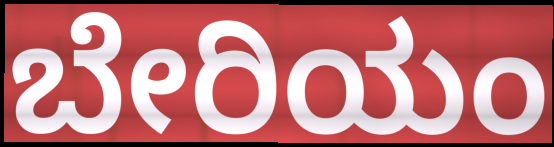
ಬೇರಿಯಂ